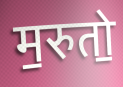
म॒रुतो॒